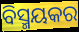
ବିସ୍ମୟକର